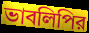
ভাবলিপির